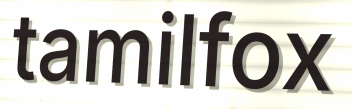
tamilfox